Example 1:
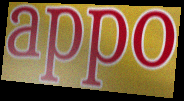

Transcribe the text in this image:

appo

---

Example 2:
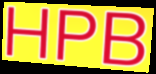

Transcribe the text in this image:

HPB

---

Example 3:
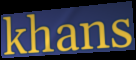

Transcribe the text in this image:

khans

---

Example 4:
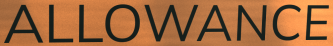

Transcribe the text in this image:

ALLOWANCE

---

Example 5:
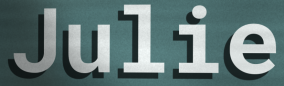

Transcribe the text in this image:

Julie